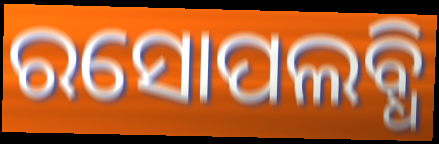
ରସୋପଲବ୍ଧି